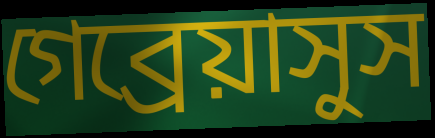
গেব্রেয়াসুস